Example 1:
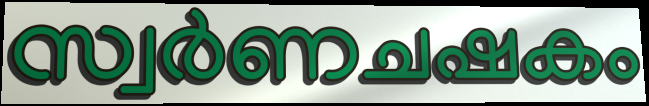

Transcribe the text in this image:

സ്വർണചഷകം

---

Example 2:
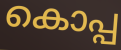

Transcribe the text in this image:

കൊപ്പ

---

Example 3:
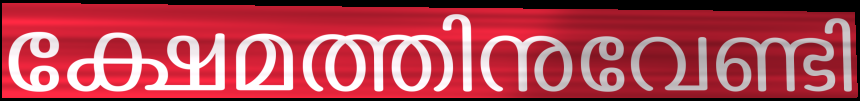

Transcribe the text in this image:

ക്ഷേമത്തിനുവേണ്ടി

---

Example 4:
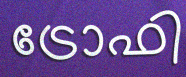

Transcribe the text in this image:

ട്രോഫി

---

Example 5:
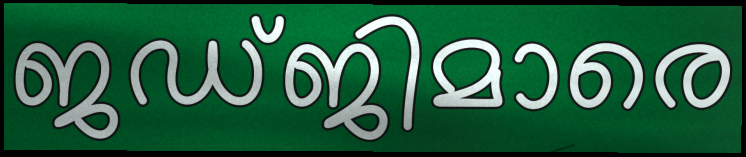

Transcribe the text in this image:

ജഡ്ജിമാരെ